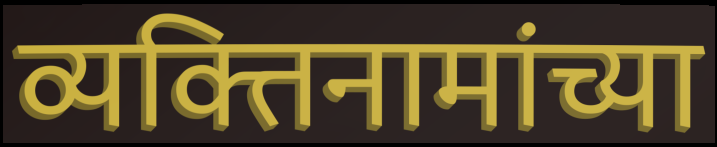
व्यक्तिनामांच्या